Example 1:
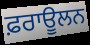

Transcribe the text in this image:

ਫ਼ਰਾਊਲਨ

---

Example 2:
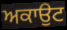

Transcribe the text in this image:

ਅਕਾਉਟ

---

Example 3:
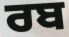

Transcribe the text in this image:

ਰਬ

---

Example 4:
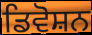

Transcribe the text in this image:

ਡਿਵੋਸ਼ਨ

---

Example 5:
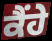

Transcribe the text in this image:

ਕੈਂਹੇ